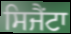
ਸਿਜੈਂਟਾ